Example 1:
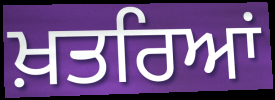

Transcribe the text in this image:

ਖ਼ਤਰਿਆਂ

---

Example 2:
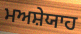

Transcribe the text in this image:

ਮਅਸ਼ੇਯਾਹ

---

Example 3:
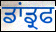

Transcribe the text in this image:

ਡਾਂਡ੍ਰਫ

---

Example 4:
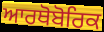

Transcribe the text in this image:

ਆਰਥੋਬੋਰਿਕ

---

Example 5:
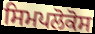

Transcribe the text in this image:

ਸਿਮਪਲੋਕੋਸ